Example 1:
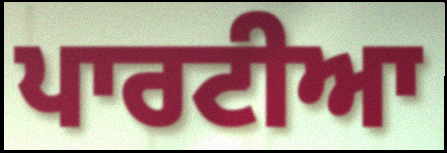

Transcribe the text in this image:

ਪਾਰਟੀਆ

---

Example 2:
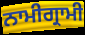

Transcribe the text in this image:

ਨਾਮੀਗ੍ਰਾਮੀ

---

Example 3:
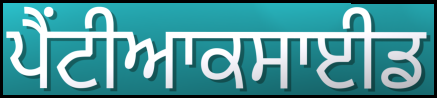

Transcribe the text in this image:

ਪੈਂਟੀਆਕਸਾਈਡ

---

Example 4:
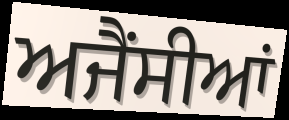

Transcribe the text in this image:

ਅਜੈਂਸੀਆਂ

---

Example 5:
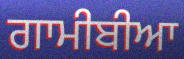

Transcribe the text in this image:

ਗਾਮੀਬੀਆ